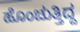
ಹೊಂಚುತ್ತಿದ್ದ